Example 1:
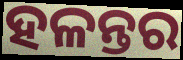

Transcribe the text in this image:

ହଳନ୍ତର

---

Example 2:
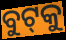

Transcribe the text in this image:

ବୁଟ୍‌କୁ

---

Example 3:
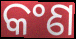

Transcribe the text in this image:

କଂଣ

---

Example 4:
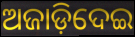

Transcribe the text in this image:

ଅଜାଡ଼ିଦେଇ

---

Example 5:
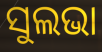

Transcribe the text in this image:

ସୁଲଭା